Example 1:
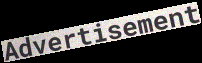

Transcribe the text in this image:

Advertisement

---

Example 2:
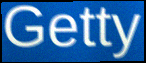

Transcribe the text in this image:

Getty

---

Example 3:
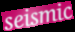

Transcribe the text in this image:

seismic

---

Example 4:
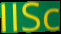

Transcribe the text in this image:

IISc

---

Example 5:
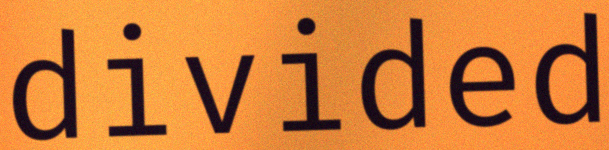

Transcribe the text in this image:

divided